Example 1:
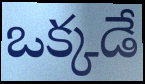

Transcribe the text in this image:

ఒక్కడే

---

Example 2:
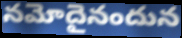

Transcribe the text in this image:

నమోదైనందున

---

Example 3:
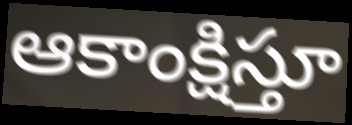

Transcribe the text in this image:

ఆకాంక్షిస్తూ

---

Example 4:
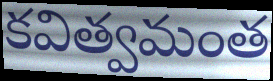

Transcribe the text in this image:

కవిత్వమంత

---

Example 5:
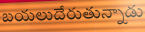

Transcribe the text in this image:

బయలుదేరుతున్నాడు